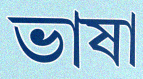
ভাষা